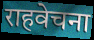
राहवेचना